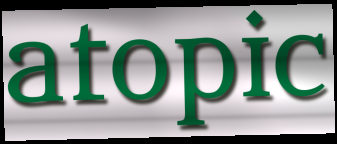
atopic